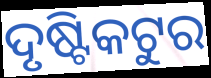
ଦୃଷ୍ଟିକଟୁର